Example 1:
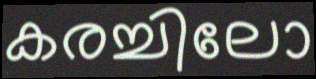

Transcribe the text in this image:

കരച്ചിലോ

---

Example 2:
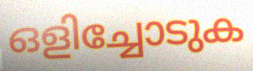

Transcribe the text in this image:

ഒളിച്ചോടുക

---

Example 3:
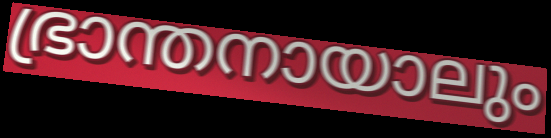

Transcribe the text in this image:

ഭ്രാന്തനായാലും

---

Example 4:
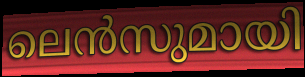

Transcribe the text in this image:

ലെൻസുമായി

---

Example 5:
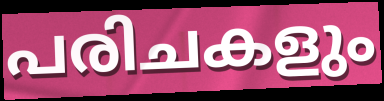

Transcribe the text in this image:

പരിചകളും